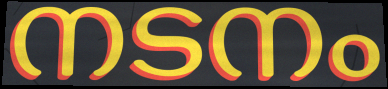
നടനം